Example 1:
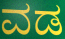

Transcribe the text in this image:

ವಡ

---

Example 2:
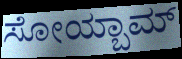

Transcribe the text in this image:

ಸೋಯ್ಬಾಮ್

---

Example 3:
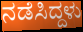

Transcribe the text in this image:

ನಡೆಸಿದ್ದಳು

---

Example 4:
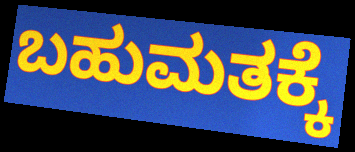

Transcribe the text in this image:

ಬಹುಮತಕ್ಕೆ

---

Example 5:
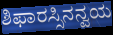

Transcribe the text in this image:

ಶಿಫಾರಸ್ಸಿನನ್ವಯ